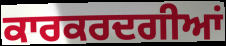
ਕਾਰਕਰਦਗੀਆਂ